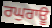
ਰਘੁਰਾਊ